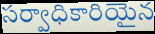
సర్వాధికారియైన